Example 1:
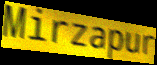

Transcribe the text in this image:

Mirzapur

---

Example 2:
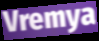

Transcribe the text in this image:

Vremya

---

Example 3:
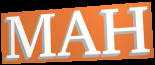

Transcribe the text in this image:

MAH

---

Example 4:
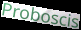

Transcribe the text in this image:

Proboscis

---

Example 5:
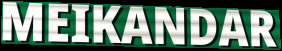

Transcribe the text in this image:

MEIKANDAR